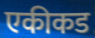
एकीकड